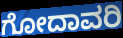
ಗೋದಾವರಿ